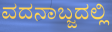
ವದನಾಬ್ಜದಲ್ಲಿ